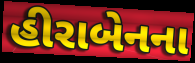
હીરાબેનના